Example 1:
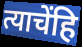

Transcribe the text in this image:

त्याचेंहि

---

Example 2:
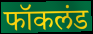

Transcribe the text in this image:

फॉकलंड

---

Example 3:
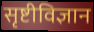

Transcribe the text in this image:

सृष्टीविज्ञान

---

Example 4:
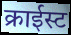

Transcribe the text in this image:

क्राईस्ट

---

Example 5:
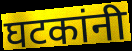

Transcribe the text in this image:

घटकांनी